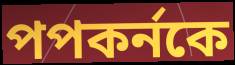
পপকর্নকে